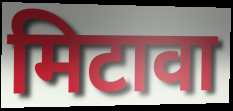
मिटावा